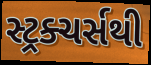
સ્ટ્રક્ચર્સથી